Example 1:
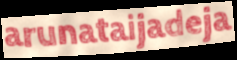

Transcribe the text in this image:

arunataijadeja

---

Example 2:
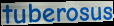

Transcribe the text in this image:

tuberosus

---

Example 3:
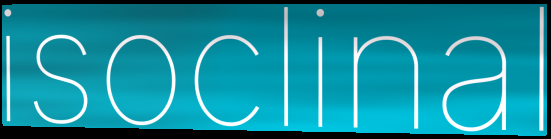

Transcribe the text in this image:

isoclinal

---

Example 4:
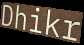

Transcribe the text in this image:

Dhikr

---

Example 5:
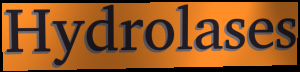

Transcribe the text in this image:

Hydrolases